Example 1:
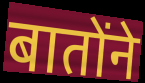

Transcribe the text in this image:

बातोंने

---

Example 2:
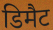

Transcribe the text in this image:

डिमैट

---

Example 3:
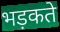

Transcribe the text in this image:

भड़कते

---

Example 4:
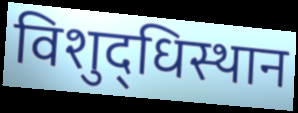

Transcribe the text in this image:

विशुद्धिस्थान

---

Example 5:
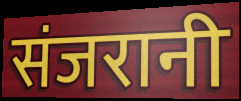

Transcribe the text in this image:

संजरानी